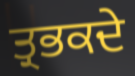
ਤ੍ਰਭਕਦੇ